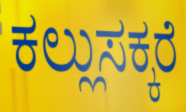
ಕಲ್ಲುಸಕ್ಕರೆ